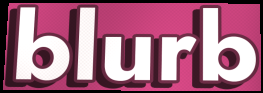
blurb